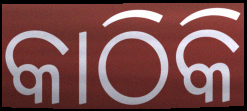
କାଠିକି